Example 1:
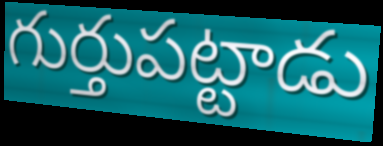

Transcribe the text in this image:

గుర్తుపట్టాడు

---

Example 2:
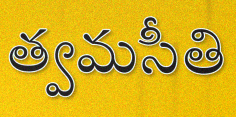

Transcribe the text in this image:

త్వమసీతి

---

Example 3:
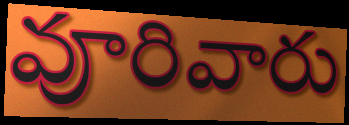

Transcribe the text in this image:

వూరివారు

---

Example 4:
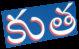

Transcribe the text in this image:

కుత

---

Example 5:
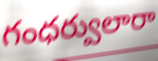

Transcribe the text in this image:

గంధర్వులారా